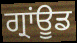
ਗ੍ਰਾਂਊਡ